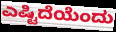
ಎಷ್ಟಿದೆಯೆಂದು